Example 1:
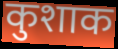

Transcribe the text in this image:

कुशाक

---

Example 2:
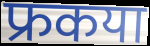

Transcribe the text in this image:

फ्रकया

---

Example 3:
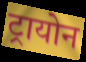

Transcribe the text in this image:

ट्रायोन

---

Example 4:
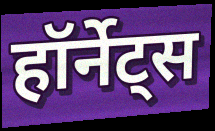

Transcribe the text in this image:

हॉर्नेट्स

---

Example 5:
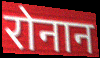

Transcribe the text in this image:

रोनान